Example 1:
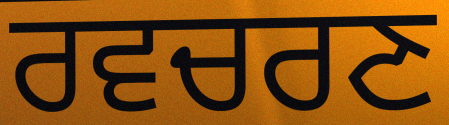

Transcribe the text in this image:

ਰਵਚਰਣ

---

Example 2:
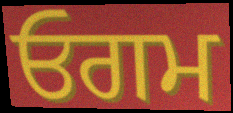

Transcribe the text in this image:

ਓਗਮ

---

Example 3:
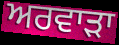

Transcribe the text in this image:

ਅਰਵਾੜਾ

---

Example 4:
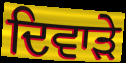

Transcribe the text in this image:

ਦਿਵਾੜੇ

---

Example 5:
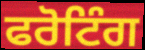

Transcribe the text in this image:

ਫਰੋਟਿੰਗ